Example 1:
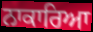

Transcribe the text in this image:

ਨਾਕਾਰਿਆ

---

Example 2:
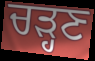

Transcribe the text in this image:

ਚੜ੍ਹਣ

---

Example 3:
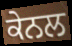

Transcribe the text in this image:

ਕੇਨਲ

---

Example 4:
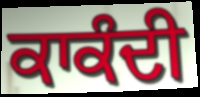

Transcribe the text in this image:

ਕਾਕੰਦੀ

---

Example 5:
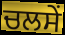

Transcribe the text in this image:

ਚਲਸੇਂ